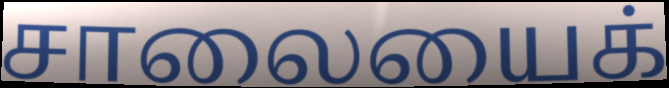
சாலையைக்